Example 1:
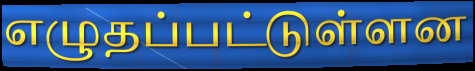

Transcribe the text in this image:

எழுதப்பட்டுள்ளன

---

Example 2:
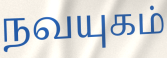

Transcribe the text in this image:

நவயுகம்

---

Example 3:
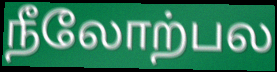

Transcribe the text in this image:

நீலோற்பல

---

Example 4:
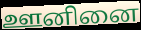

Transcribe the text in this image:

ஊனினை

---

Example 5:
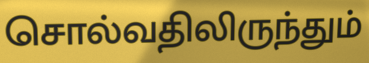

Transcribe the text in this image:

சொல்வதிலிருந்தும்